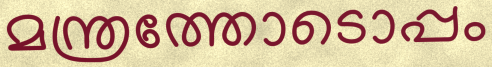
മന്ത്രത്തോടൊപ്പം